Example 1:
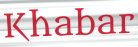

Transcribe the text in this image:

Khabar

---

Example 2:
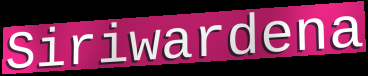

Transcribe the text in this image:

Siriwardena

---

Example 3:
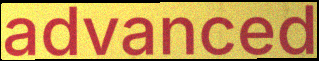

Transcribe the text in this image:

advanced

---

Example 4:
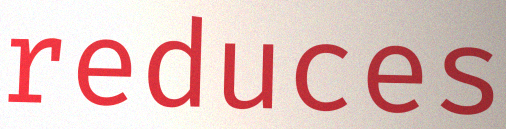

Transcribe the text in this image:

reduces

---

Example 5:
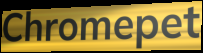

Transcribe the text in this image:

Chromepet